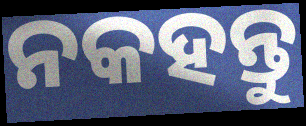
ନକହନ୍ତୁ